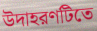
উদাহরণটিতে